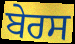
ਬੇਰਸ